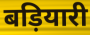
बड़ियारी